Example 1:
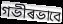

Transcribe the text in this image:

গভীৰভাবে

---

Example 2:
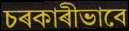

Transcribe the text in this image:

চৰকাৰীভাবে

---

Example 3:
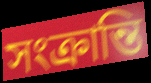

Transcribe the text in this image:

সংক্ৰান্তি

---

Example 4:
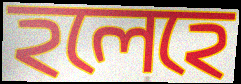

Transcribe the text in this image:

হলেহে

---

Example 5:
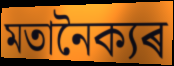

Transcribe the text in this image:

মতানৈক্যৰ